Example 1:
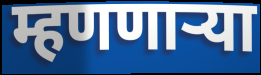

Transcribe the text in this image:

म्हणणार्‍या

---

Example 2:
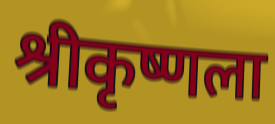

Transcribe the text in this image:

श्रीकृष्णला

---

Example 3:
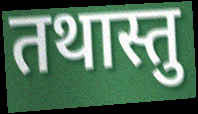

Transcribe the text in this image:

तथास्तु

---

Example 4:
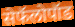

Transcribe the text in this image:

सेफॅलोपॉड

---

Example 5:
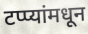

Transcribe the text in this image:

टप्प्यांमधून